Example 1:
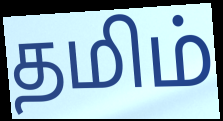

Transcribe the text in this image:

தமிம்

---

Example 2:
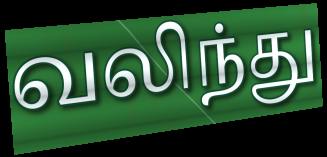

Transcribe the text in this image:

வலிந்து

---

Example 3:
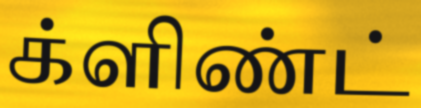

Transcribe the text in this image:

க்ளிண்ட்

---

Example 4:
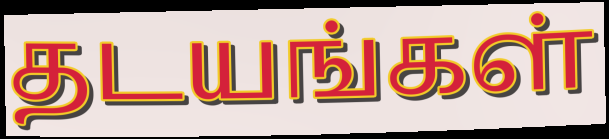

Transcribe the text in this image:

தடயங்கள்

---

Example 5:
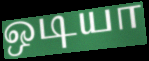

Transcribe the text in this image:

ஒடியா